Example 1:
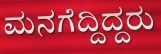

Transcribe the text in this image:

ಮನಗೆದ್ದಿದ್ದರು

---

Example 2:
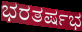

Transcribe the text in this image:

ಭರತರ್ಷಭ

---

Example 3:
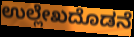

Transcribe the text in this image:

ಉಲ್ಲೇಖದೊಡನೆ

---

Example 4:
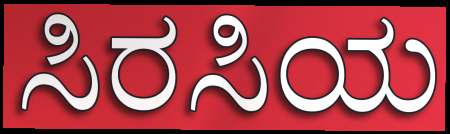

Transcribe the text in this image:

ಸಿರಸಿಯ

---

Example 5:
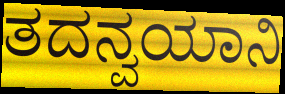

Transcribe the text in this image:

ತದನ್ವಯಾನಿ